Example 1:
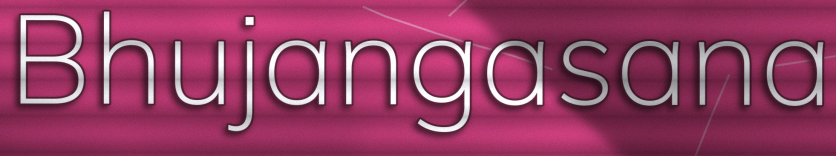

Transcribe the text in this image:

Bhujangasana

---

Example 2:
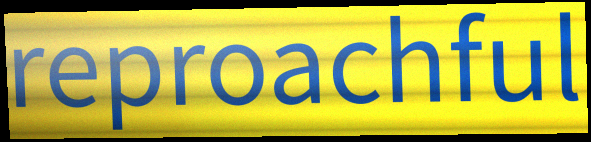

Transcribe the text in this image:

reproachful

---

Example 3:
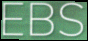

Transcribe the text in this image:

EBS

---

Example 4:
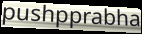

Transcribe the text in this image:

pushpprabha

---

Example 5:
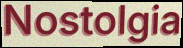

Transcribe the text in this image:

Nostolgia